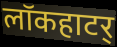
लॉकहाटर्